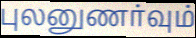
புலனுணர்வும்